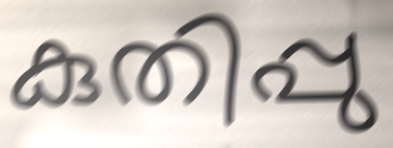
കുതിപ്പു